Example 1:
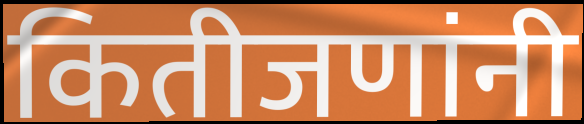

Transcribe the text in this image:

कितीजणांनी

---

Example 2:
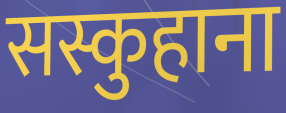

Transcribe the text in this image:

सस्कुहाना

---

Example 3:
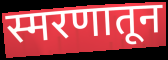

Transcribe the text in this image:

स्मरणातून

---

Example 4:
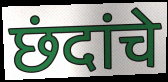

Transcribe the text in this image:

छंदांचे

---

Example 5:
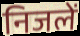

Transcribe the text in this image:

निजलें